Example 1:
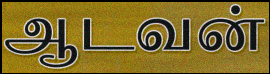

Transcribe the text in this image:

ஆடவன்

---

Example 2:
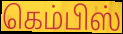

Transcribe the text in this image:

கெம்பிஸ்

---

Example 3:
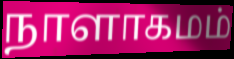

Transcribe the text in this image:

நாளாகமம்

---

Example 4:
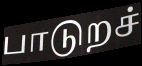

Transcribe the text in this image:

பாடுறச்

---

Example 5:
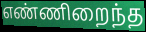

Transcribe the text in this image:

எண்ணிறைந்த